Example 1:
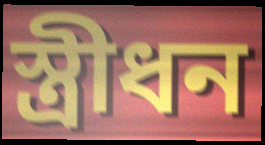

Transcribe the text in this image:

স্ত্রীধন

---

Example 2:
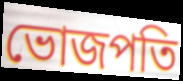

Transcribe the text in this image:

ভোজপতি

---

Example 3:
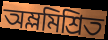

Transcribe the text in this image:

অম্লমিশ্রিত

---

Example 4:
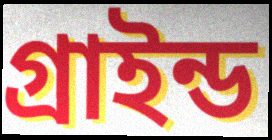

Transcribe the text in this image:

গ্রাইন্ড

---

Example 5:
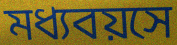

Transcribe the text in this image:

মধ্যবয়সে